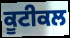
ਕੂਟੀਕਲ